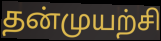
தன்முயற்சி